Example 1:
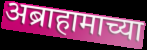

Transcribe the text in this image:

अब्राहामाच्या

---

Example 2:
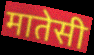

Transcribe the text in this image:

मातेसी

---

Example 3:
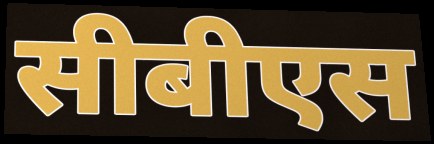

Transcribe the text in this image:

सीबीएस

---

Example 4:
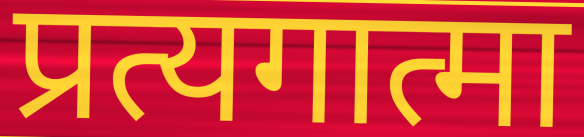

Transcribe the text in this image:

प्रत्यगात्मा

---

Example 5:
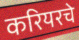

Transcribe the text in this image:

करियरचे